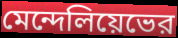
মেন্দেলিয়েভের